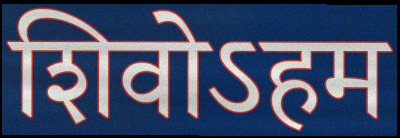
शिवोऽहम